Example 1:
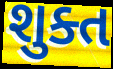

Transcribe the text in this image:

શુક્ત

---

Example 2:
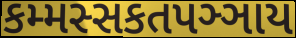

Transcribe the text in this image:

કમ્મસ્સકતપઞ્ઞાય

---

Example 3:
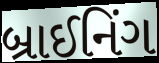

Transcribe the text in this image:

બ્રાઈનિંગ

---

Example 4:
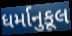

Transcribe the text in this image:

ધર્માનુકૂલ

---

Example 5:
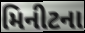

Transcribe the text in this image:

મિનીટના